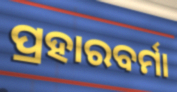
ପ୍ରହାରବର୍ମା